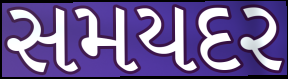
સમયદર